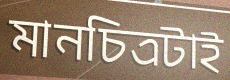
মানচিত্রটাই